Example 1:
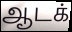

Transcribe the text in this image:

ஆடக்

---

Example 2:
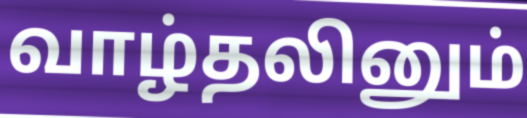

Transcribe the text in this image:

வாழ்தலினும்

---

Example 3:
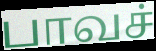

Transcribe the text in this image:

பாவச்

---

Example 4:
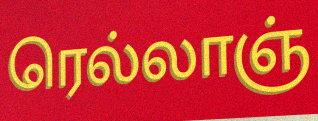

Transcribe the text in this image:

ரெல்லாஞ்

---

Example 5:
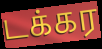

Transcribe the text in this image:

டக்கர